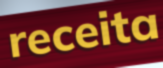
receita